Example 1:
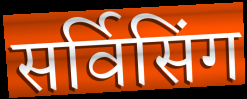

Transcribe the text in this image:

सर्विसिंग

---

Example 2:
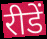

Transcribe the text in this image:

रीडें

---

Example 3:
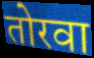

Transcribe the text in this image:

तोरवा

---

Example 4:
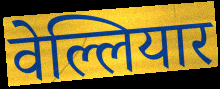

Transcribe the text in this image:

वेल्लियार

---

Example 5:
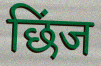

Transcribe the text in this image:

छिंज